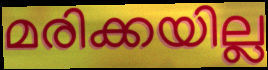
മരിക്കയില്ല